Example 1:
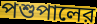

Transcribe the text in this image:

পশুপালের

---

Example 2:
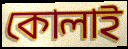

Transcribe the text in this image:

কোলাই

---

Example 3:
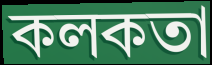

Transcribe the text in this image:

কলকতা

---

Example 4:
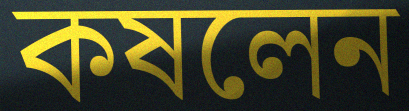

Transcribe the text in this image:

কষলেন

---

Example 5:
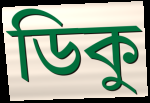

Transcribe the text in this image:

ডিকু